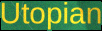
Utopian